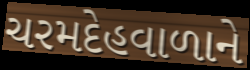
ચરમદેહવાળાને